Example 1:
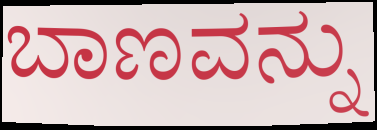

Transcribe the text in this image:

ಬಾಣವನ್ನು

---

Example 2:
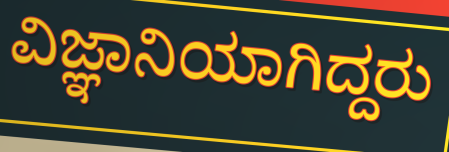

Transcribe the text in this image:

ವಿಜ್ಞಾನಿಯಾಗಿದ್ದರು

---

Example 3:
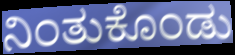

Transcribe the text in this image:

ನಿಂತುಕೊಂಡು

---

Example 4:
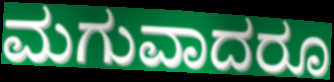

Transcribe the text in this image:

ಮಗುವಾದರೂ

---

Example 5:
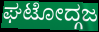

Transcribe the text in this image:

ಘಟೋದ್ಗಜ